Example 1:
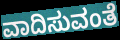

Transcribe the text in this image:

ವಾದಿಸುವಂತೆ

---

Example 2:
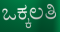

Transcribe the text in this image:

ಒಕ್ಕಲತಿ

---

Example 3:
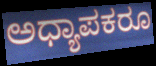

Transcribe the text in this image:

ಅಧ್ಯಾಪಕರೂ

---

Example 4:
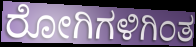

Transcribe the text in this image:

ರೋಗಿಗಳಿಗಿಂತ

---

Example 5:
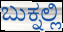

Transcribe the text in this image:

ಬುಕ್ನಲ್ಲಿ